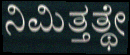
ನಿಮಿತ್ತತ್ಥೇ